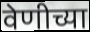
वेणीच्या